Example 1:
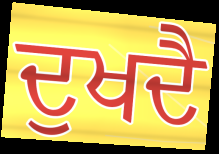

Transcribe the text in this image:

ਦੁਖਦੈ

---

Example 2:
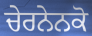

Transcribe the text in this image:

ਚੇਰਨੇਨਕੋ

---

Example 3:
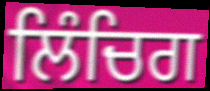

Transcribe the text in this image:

ਲਿੰਚਿਗ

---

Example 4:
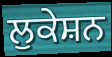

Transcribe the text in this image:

ਲੁਕੇਸ਼ਨ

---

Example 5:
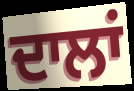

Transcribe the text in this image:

ਦਾਲਾਂ